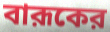
বারূকের